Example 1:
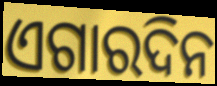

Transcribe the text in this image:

ଏଗାରଦିନ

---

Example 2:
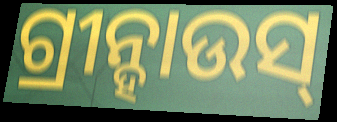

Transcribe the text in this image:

ଗ୍ରୀନ୍ହାଉସ୍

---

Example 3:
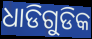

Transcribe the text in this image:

ଧାଡିଗୁଡିକ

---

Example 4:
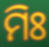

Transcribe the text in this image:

ମିଃ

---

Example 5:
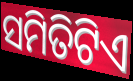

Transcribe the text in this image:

ସମିତିଟିଏ